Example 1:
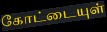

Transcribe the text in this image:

கோட்டையுள்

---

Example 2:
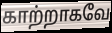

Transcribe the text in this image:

காற்றாகவே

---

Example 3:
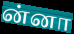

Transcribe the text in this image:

ன்னா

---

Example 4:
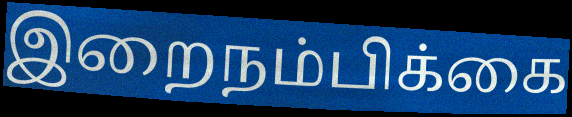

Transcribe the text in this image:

இறைநம்பிக்கை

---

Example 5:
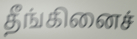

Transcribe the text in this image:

தீங்கினைச்